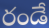
రండే